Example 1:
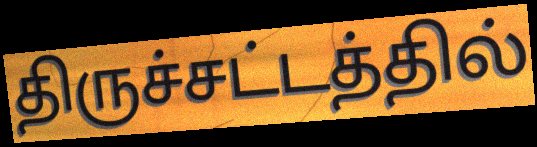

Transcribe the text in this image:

திருச்சட்டத்தில்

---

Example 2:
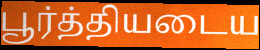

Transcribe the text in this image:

பூர்த்தியடைய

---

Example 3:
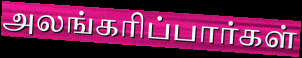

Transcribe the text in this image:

அலங்கரிப்பார்கள்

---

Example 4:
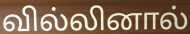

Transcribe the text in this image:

வில்லினால்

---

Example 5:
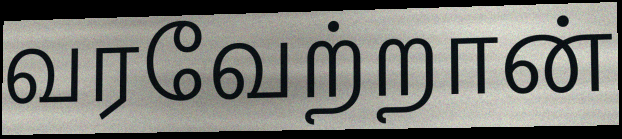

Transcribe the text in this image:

வரவேற்றான்